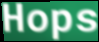
Hops